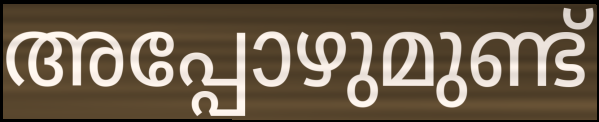
അപ്പോഴുമുണ്ട്